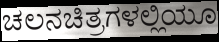
ಚಲನಚಿತ್ರಗಳಲ್ಲಿಯೂ